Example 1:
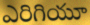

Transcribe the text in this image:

ఎరిగియూ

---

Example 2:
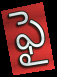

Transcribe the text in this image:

ఫై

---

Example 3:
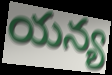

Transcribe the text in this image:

యన్య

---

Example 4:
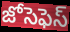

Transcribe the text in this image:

జోసెఫెస్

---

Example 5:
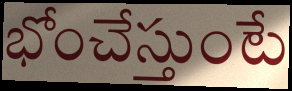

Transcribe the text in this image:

భోంచేస్తుంటే